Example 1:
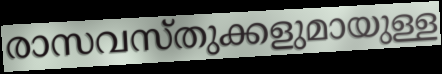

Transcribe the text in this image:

രാസവസ്തുക്കളുമായുള്ള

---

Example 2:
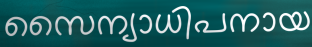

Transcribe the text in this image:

സൈന്യാധിപനായ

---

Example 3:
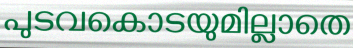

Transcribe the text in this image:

പുടവകൊടയുമില്ലാതെ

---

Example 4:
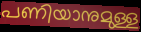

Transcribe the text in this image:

പണിയാനുമുള്ള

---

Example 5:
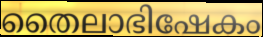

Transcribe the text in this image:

തൈലാഭിഷേകം